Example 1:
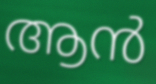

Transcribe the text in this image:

ആൻ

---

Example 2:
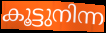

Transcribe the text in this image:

കൂട്ടുനിന്ന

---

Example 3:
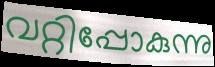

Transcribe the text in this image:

വറ്റിപ്പോകുന്നു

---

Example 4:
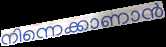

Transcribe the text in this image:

നിന്നെക്കാണാൻ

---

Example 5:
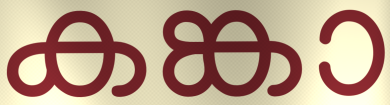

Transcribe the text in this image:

കങ്കാ